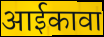
आईकावा